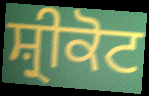
ਸ਼੍ਰੀਕੋਟ